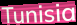
Tunisia